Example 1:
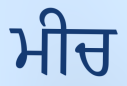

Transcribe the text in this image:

ਮੀਚ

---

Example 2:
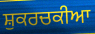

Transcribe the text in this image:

ਸ਼ੁਕਰਚਕੀਆ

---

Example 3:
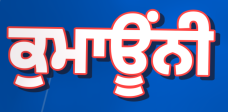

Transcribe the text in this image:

ਕੁਮਾਊਂਨੀ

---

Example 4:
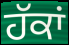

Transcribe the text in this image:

ਹੱਕਾਂ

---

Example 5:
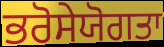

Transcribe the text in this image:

ਭਰੋਸੇਯੋਗਤਾ